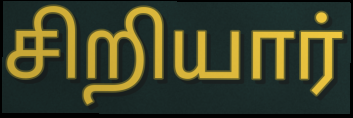
சிறியார்